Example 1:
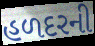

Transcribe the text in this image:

હળદરની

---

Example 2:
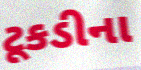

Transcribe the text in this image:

ટૂકડીના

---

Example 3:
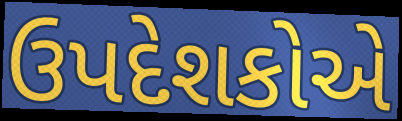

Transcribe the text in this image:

ઉપદેશકોએ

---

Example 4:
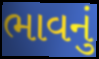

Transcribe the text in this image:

ભાવનું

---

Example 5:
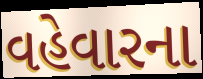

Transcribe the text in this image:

વહેવારના